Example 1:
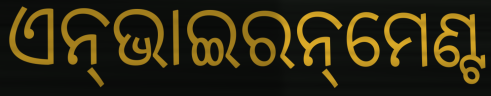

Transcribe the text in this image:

ଏନ୍‌ଭାଇରନ୍‌ମେଣ୍ଟ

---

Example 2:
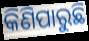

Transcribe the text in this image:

କିଣିପାରୁଛି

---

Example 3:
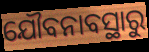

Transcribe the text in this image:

ଯୌବନାବସ୍ଥାରୁ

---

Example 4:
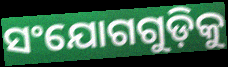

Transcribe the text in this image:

ସଂଯୋଗଗୁଡ଼ିକୁ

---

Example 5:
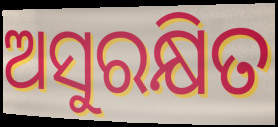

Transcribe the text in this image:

ଅସୁରକ୍ଷିତ